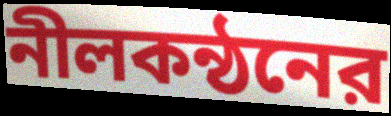
নীলকন্ঠনের